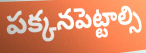
పక్కనపెట్టాల్సి